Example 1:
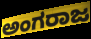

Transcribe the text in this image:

ಅಂಗರಾಜ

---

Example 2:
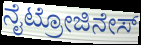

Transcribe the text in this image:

ನೈಟ್ರೋಜಿನೇಸ್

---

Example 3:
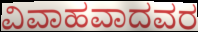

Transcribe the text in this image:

ವಿವಾಹವಾದವರ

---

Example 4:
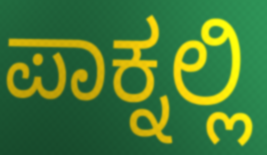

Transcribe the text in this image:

ಪಾಕ್ನಲ್ಲಿ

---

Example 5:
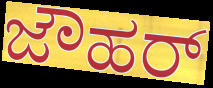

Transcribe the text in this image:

ಜೌಹರ್